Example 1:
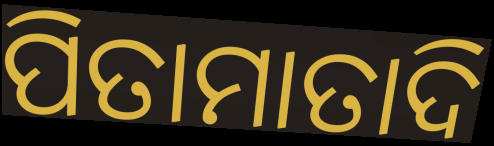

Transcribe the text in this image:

ପିତାମାତାଦି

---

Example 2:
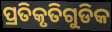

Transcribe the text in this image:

ପ୍ରତିକୃତିଗୁଡିକ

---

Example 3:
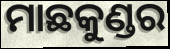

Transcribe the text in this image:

ମାଛକୁଣ୍ଡର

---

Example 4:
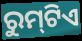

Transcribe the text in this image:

ରୁମ୍‌ଟିଏ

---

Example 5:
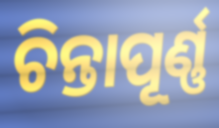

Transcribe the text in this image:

ଚିନ୍ତାପୂର୍ଣ୍ଣ